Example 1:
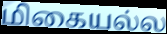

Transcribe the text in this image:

மிகையல்ல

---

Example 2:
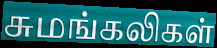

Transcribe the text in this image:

சுமங்கலிகள்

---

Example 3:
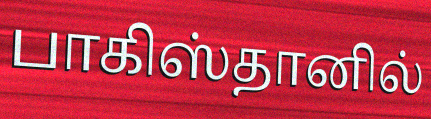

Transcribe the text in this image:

பாகிஸ்தானில்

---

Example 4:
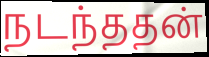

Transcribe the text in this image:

நடந்ததன்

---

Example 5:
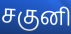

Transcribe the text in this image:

சகுனி